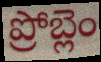
ప్రోబ్లెం